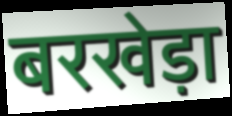
बरखेड़ा